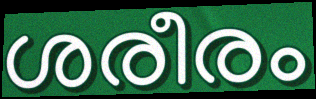
ശരീരം